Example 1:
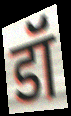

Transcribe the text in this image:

डॉं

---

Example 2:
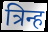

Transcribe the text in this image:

त्रिन्ह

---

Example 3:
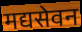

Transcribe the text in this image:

मद्यसेवन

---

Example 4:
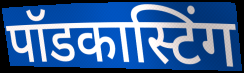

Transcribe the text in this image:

पॉडकास्टिंग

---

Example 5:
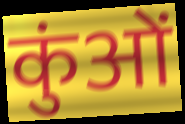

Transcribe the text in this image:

कुंओं